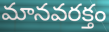
మానవరక్తం